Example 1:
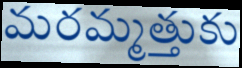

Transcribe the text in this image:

మరమ్మత్తుకు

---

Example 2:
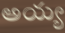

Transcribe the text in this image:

అయ్య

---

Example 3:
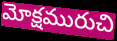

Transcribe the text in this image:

మోక్షమురుచి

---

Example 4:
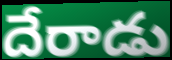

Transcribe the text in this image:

దేరాడు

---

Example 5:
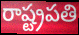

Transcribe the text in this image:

రాష్ట్రపతి